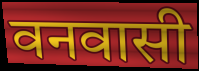
वनवासी